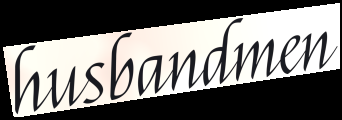
husbandmen